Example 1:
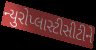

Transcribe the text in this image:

ન્યુરોપ્લાસ્ટીસીટીને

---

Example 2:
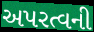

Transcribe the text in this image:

અપરત્વની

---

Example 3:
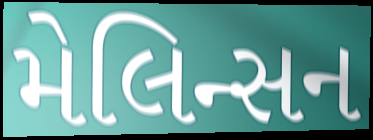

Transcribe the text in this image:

મેલિન્સન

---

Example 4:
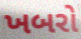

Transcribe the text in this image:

ખબરો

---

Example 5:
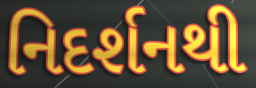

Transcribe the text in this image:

નિદર્શનથી